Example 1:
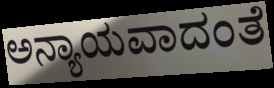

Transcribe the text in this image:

ಅನ್ಯಾಯವಾದಂತೆ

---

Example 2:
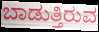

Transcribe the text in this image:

ಬಾಡುತ್ತಿರುವ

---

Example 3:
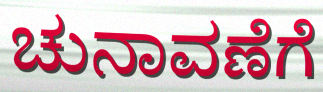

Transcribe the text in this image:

ಚುನಾವಣೆಗೆ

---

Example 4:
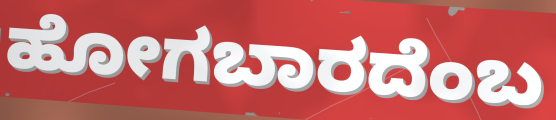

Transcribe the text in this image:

ಹೋಗಬಾರದೆಂಬ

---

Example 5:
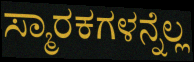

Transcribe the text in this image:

ಸ್ಮಾರಕಗಳನ್ನೆಲ್ಲ